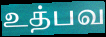
உத்பவ